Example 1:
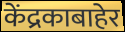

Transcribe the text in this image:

केंद्रकाबाहेर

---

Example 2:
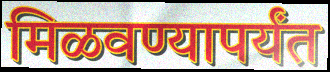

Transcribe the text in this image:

मिळवण्यापर्यंत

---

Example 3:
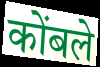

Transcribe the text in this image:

कोंबले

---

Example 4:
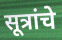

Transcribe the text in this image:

सूत्रांचे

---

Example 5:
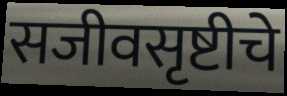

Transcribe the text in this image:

सजीवसृष्टीचे